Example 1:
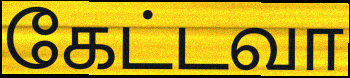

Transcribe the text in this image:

கேட்டவா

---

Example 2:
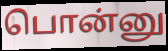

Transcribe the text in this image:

பொன்னு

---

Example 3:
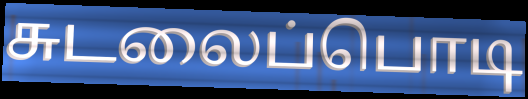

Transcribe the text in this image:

சுடலைப்பொடி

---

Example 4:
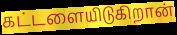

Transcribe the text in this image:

கட்டளையிடுகிறான்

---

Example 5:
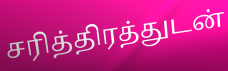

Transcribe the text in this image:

சரித்திரத்துடன்